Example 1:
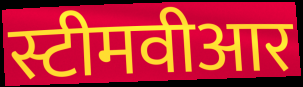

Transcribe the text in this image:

स्टीमवीआर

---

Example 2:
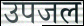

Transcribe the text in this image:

उपजल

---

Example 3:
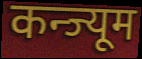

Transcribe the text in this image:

कन्ज्यूम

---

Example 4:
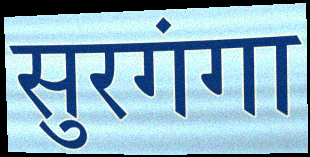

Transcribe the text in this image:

सुरगंगा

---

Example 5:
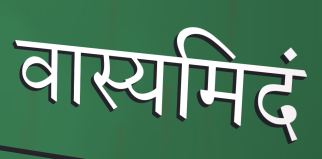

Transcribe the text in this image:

वास्यमिदं